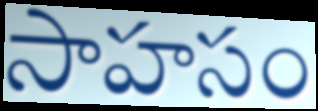
సాహసం